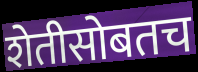
शेतीसोबतच